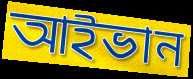
আইভান